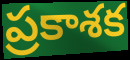
ప్రకాశక